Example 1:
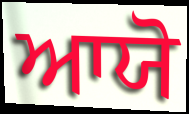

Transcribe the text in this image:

ਆਯੋ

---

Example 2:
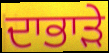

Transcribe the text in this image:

ਦਾਭਾੜੇ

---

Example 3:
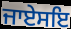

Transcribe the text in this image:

ਜਾਏਸਇ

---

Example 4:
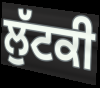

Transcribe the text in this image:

ਲੁੱਟਕੀ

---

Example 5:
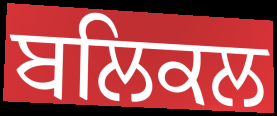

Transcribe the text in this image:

ਬਲਿਕਲ